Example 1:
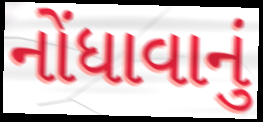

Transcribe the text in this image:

નોંધાવાનું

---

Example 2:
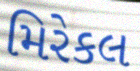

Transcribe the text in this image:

મિરેકલ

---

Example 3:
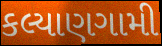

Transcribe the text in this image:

કલ્યાણગામી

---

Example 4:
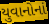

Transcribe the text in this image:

યુવાનોનાં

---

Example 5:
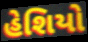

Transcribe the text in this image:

હેશિયો